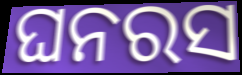
ଘନରସ